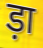
ड़ा